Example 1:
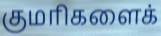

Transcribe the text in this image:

குமரிகளைக்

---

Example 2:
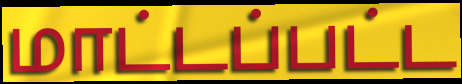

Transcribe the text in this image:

மாட்டப்பட்ட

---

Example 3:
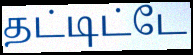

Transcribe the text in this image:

தட்டிட்டே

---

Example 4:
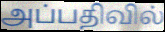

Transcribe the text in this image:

அப்பதிவில்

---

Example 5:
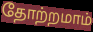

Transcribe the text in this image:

தோற்றமாம்